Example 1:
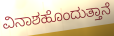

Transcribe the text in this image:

ವಿನಾಶಹೊಂದುತ್ತಾನೆ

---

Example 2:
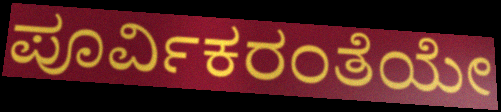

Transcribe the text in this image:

ಪೂರ್ವಿಕರಂತೆಯೇ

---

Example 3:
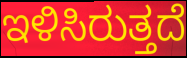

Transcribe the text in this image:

ಇಳಿಸಿರುತ್ತದೆ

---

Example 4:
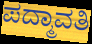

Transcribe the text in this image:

ಪದ್ಮಾವತಿ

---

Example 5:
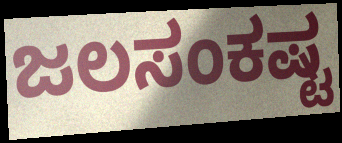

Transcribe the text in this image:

ಜಲಸಂಕಷ್ಟ